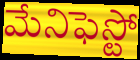
మేనిఫెస్టో